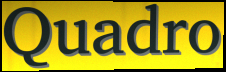
Quadro